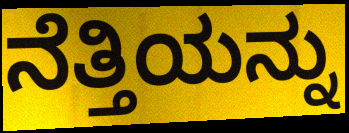
ನೆತ್ತಿಯನ್ನು